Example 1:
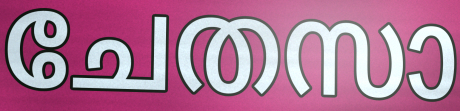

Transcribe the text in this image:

ചേതസാ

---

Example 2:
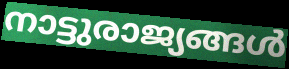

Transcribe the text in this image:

നാട്ടുരാജ്യങ്ങൾ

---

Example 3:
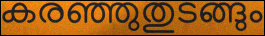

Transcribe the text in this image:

കരഞ്ഞുതുടങ്ങും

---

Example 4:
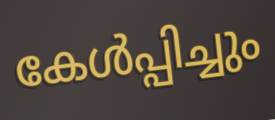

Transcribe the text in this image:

കേൾപ്പിച്ചും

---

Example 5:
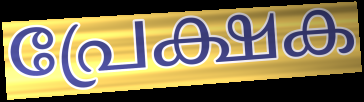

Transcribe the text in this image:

പ്രേക്ഷക